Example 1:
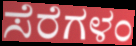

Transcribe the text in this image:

ಸೆರೆಗಳಂ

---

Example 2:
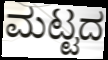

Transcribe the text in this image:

ಮಟ್ಟದ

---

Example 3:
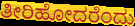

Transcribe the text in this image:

ತೀರಿಹೋದರೆಂದು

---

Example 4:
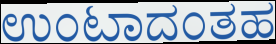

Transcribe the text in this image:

ಉಂಟಾದಂತಹ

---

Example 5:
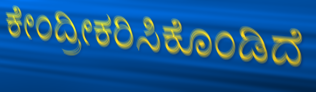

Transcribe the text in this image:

ಕೇಂದ್ರೀಕರಿಸಿಕೊಂಡಿದೆ